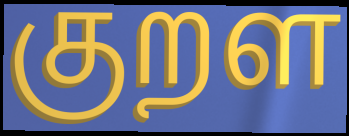
குறள